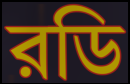
রডি